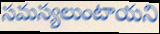
సమస్యలుంటాయని